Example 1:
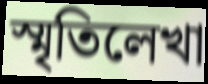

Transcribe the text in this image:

স্মৃতিলেখা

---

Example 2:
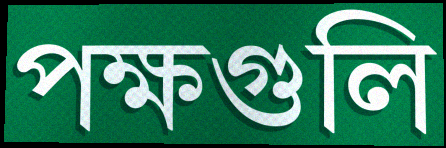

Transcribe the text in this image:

পক্ষগুলি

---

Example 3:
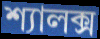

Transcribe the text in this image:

শ্যালক্স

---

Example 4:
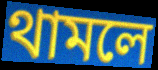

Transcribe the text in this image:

থামলে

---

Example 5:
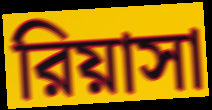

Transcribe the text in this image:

রিয়াসা